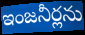
ఇంజనీర్లను